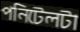
পনিটেলটা